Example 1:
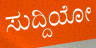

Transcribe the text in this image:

ಸುದ್ದಿಯೋ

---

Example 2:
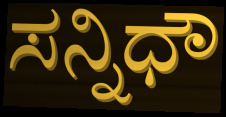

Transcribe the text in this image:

ಸನ್ನಿಧೌ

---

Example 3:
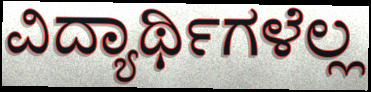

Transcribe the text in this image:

ವಿದ್ಯಾರ್ಥಿಗಳೆಲ್ಲ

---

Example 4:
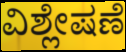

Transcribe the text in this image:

ವಿಶ್ಲೇಷಣೆ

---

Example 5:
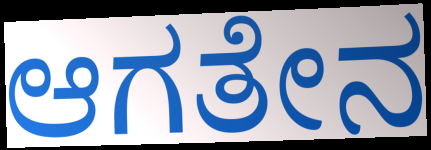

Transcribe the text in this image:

ಆಗತೇನ